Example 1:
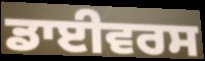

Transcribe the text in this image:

ਡਾਈਵਰਸ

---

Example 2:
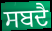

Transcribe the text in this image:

ਸਬਦੈ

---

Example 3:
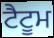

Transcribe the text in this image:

ਟੈਟੂਮ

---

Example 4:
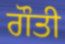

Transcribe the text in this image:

ਗੌਤੀ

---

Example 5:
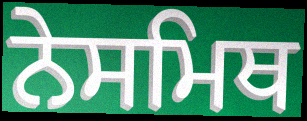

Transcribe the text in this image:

ਨੇਸਮਿਥ